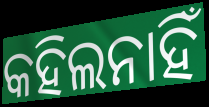
କହିଲନାହିଁ